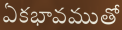
ఏకభావముతో